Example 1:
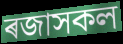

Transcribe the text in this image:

ৰজাসকল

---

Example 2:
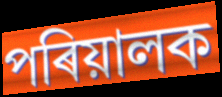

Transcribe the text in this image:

পৰিয়ালক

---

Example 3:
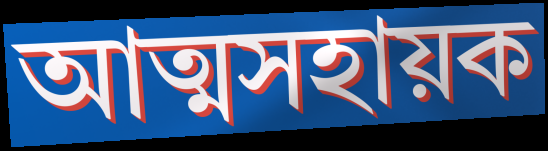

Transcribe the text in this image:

আত্মসহায়ক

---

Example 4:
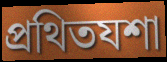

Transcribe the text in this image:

প্ৰথিতযশা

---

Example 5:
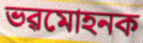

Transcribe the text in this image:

ভৱমোহনক